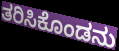
ತರಿಸಿಕೊಂಡನು